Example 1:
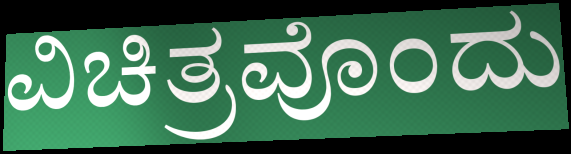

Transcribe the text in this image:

ವಿಚಿತ್ರವೊಂದು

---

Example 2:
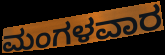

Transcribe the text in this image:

ಮಂಗಳವಾರ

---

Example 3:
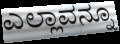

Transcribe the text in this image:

ಎಲ್ಲಾವನ್ನೂ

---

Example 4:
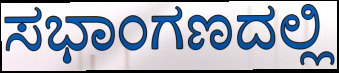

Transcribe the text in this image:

ಸಭಾಂಗಣದಲ್ಲಿ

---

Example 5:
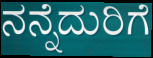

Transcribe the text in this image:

ನನ್ನೆದುರಿಗೆ